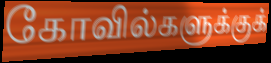
கோவில்களுக்குக்